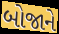
બોજાને